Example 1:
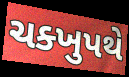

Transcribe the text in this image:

ચક્ખુપથે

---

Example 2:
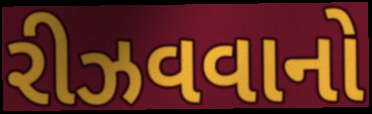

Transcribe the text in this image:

રીઝવવાનો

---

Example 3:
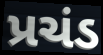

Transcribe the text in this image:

પ્રચંડ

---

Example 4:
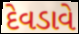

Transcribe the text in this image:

દેવડાવે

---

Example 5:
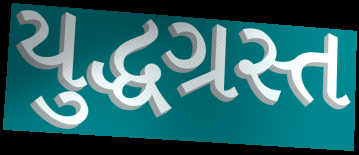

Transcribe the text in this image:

યુદ્ધગ્રસ્ત